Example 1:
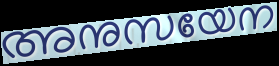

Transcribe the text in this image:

അനുസയേന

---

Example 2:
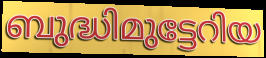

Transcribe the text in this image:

ബുദ്ധിമുട്ടേറിയ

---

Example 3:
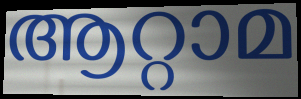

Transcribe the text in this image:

ആറ്റാമ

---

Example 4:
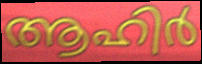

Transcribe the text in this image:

ആഹിർ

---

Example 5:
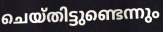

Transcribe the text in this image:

ചെയ്തിട്ടുണ്ടെന്നും